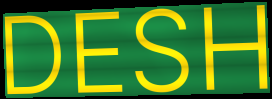
DESH